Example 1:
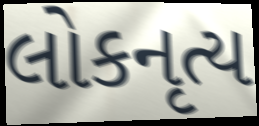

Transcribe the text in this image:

લોકનૃત્ય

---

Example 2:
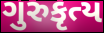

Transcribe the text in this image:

ગુરુકૃત્ય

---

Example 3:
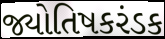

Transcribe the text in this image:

જ્યોતિષકરંડક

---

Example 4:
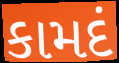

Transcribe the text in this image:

કામદં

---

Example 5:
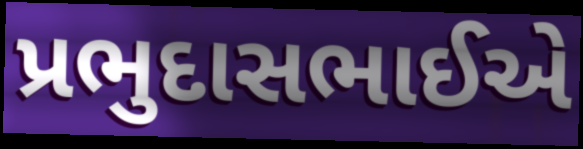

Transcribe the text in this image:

પ્રભુદાસભાઈએ